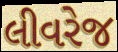
લીવરેજ